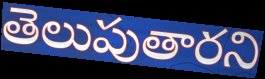
తెలుపుతారని